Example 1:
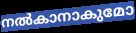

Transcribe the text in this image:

നൽകാനാകുമോ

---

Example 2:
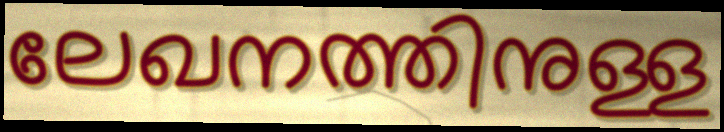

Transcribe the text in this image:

ലേഖനത്തിനുള്ള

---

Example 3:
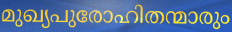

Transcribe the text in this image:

മുഖ്യപുരോഹിതന്മാരും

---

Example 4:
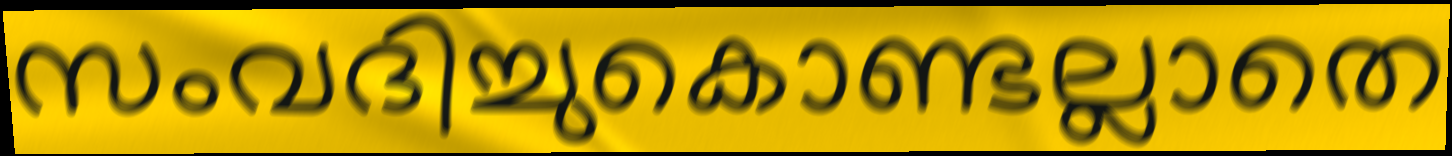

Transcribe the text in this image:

സംവദിച്ചുകൊണ്ടല്ലാതെ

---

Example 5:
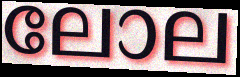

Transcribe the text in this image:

ലോല